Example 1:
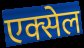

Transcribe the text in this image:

एक्‍सेल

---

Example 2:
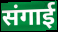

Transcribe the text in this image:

संगाई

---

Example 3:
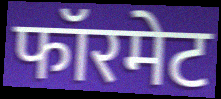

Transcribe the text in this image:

फॉरमेट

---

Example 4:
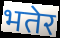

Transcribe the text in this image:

भतेर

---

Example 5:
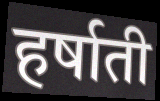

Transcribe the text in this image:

हर्षाती